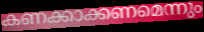
കണക്കാക്കണമെന്നും